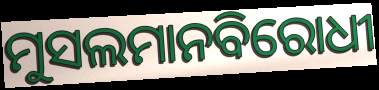
ମୁସଲମାନବିରୋଧୀ